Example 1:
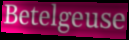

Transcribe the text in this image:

Betelgeuse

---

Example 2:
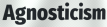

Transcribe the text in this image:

Agnosticism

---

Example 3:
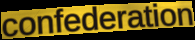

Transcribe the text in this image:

confederation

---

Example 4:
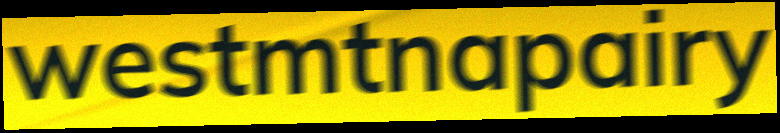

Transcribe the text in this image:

westmtnapairy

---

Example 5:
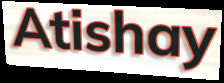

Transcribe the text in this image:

Atishay